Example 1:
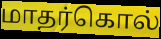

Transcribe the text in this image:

மாதர்கொல்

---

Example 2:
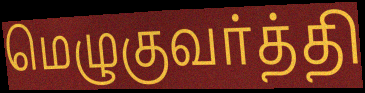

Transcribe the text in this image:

மெழுகுவர்த்தி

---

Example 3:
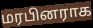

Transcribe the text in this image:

மரபினராக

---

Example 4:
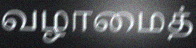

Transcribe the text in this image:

வழாமைத்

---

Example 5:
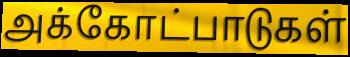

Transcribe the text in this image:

அக்கோட்பாடுகள்